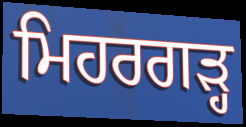
ਮਿਹਰਗੜ੍ਹ